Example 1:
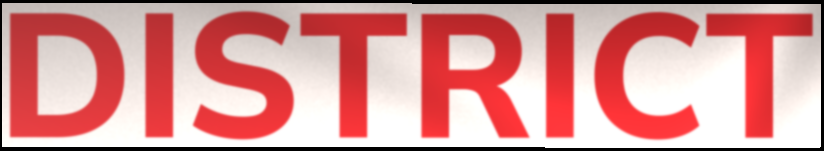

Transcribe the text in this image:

DISTRICT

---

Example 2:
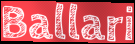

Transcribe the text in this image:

Ballari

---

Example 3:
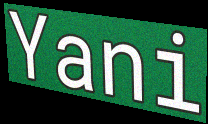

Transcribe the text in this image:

Yani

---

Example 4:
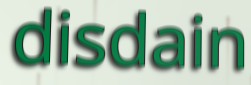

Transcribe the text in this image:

disdain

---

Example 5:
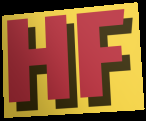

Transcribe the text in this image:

HF